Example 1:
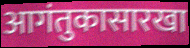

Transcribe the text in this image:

आगंतुकासारखा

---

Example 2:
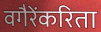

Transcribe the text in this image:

वगैरेंकरिता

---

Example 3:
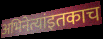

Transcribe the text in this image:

अभिनेत्यांइतकाच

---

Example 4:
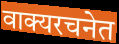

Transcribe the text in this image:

वाक्यरचनेत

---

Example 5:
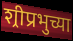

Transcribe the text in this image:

श्रीप्रभुच्या